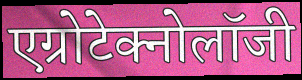
एग्रोटेक्नोलॉजी